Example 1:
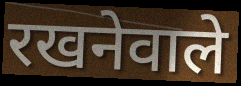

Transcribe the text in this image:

रखनेवाले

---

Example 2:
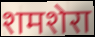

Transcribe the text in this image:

शमशेरा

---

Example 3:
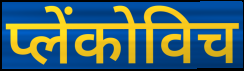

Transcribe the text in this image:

प्लेंकोविच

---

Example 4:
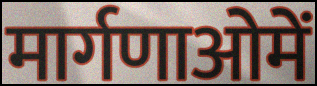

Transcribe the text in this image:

मार्गणाओमें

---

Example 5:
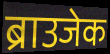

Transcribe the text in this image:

ब्राउजेक